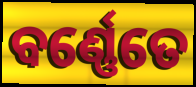
ବର୍ଣ୍ଣେତେ